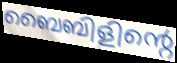
ബൈബിളിന്റെ